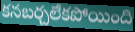
కనబర్చలేకపోయింది